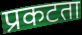
प्रकटता